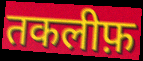
तकलीफ़